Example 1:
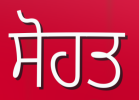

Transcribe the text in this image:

ਸੋਹਤ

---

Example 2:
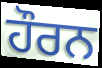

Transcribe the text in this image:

ਹੌਰਨ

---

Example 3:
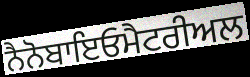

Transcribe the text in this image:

ਨੈਨੋਬਾਇਓਮੈਟਰੀਅਲ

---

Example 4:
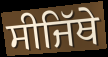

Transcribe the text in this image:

ਸੀਜਿੱਥੇ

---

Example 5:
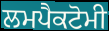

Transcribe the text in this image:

ਲਮਪੈਕਟੋਮੀ